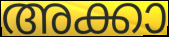
അക്കാ